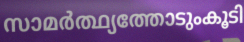
സാമർത്ഥ്യത്തോടുംകൂടി